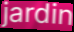
jardin